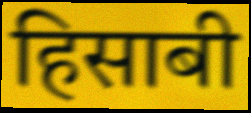
हिसाबी